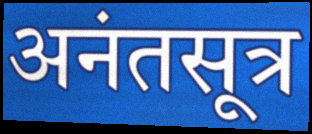
अनंतसूत्र